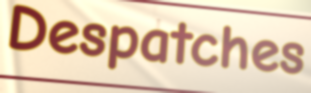
Despatches